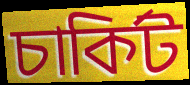
চাৰ্কিট